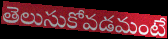
తెలుసుకోవడమంటే